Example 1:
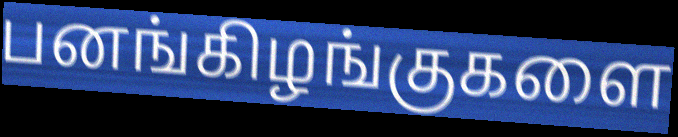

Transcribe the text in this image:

பனங்கிழங்குகளை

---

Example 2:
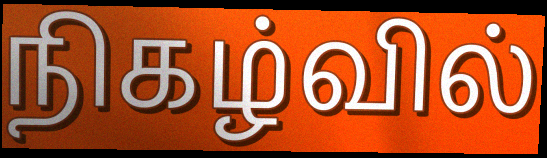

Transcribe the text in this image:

நிகழ்வில்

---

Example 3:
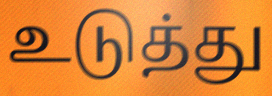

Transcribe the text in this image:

உடுத்து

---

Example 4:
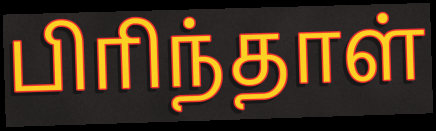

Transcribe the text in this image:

பிரிந்தாள்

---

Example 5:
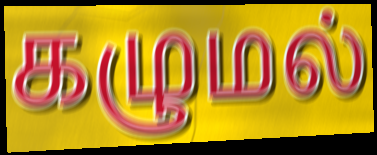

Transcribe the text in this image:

கழுமல்